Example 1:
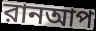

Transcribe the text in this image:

রানআপ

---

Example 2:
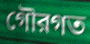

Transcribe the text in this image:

গৌরগত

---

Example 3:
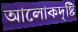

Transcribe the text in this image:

আলোকদৃষ্টি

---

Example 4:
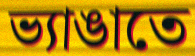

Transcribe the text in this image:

ভ্যাঙাতে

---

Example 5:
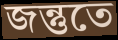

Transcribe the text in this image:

জন্তুতে